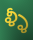
ళ్ళీ